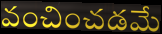
వంచించడమే